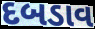
દબડાવ